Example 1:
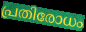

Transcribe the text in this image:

പ്രതിരോധം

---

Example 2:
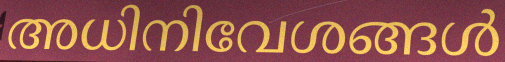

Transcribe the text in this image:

അധിനിവേശങ്ങൾ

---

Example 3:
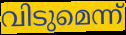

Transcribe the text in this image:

വിടുമെന്ന്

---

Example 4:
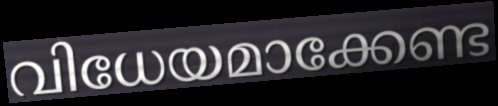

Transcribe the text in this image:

വിധേയമാക്കേണ്ട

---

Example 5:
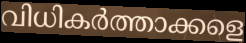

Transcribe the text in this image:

വിധികർത്താക്കളെ